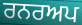
ਰਨਰਅਪ